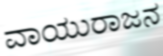
ವಾಯುರಾಜನ